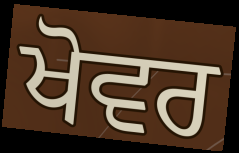
ਖੋਵਰ